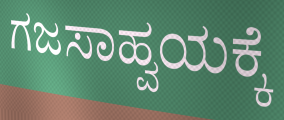
ಗಜಸಾಹ್ವಯಕ್ಕೆ